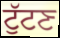
ਟੁੱਟਣ